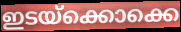
ഇടയ്ക്കൊക്കെ